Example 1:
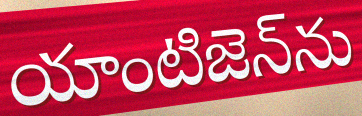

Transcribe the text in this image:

యాంటిజెన్‌ను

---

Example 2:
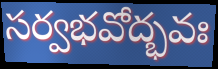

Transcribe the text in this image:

సర్వభవోద్భవః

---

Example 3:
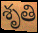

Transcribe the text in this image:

శృతి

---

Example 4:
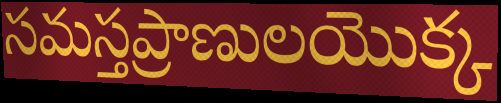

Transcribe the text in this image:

సమస్తప్రాణులయొక్క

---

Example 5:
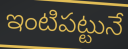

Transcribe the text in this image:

ఇంటిపట్టునే